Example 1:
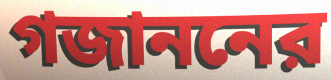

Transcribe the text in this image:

গজাননের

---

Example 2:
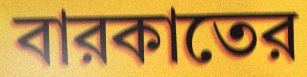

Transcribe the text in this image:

বারকাতের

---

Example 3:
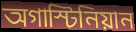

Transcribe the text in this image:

অগাস্টিনিয়ান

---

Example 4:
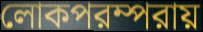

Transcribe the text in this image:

লোকপরম্পরায়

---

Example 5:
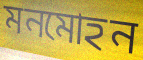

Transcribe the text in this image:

মনমোহন